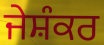
ਜੇਸ਼ੰਕਰ